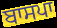
ਬਾਸਪਾ